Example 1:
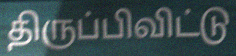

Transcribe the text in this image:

திருப்பிவிட்டு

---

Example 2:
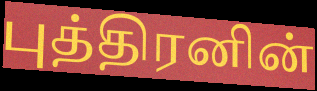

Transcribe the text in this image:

புத்திரனின்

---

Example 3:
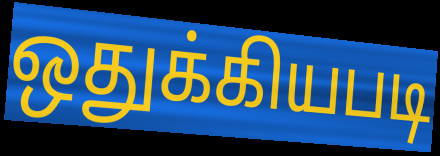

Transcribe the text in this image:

ஒதுக்கியபடி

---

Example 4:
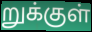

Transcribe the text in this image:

றுக்குள்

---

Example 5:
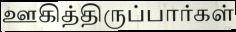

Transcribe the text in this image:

ஊகித்திருப்பார்கள்